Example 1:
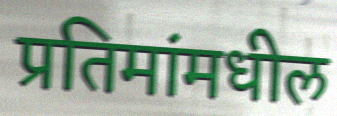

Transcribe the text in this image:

प्रतिमांमधील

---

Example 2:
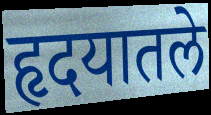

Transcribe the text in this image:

हृदयातले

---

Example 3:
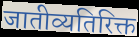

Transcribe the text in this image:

जातीव्यतिरिक्त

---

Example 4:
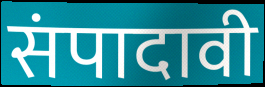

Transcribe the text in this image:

संपादावी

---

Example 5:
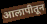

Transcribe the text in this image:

आलापीतून